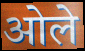
ओले